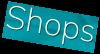
Shops